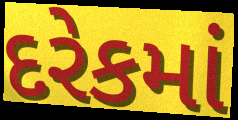
દરેકમાં